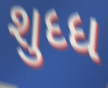
શુધ્ધ